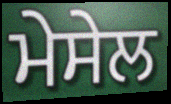
ਮੇਸੇਲ